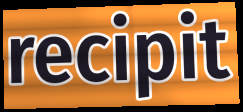
recipit